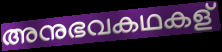
അനുഭവകഥകള്